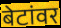
बेटांवर